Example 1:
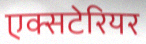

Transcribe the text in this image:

एक्सटेरियर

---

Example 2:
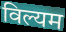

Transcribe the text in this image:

विल्यम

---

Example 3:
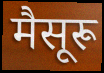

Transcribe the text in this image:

मैसूरू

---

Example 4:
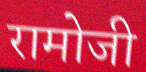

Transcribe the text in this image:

रामोजी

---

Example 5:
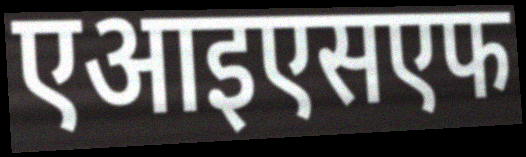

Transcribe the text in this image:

एआइएसएफ